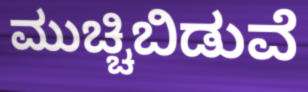
ಮುಚ್ಚಿಬಿಡುವೆ